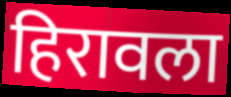
हिरावला